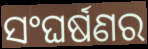
ସଂଘର୍ଷଣର